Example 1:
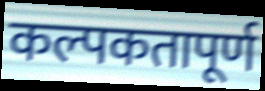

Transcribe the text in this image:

कल्पकतापूर्ण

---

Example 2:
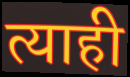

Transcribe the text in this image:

त्याही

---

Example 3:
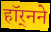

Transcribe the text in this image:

हॉर्नने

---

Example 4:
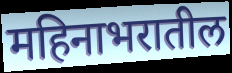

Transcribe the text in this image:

महिनाभरातील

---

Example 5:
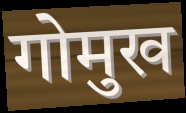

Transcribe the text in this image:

गोमुख